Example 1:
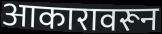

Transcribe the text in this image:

आकारावरून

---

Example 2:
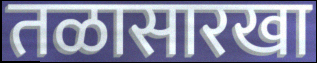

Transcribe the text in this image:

तळासारखा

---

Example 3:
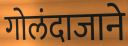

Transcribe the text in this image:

गोलंदाजाने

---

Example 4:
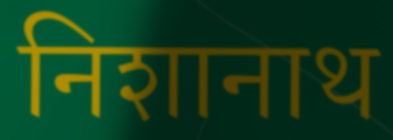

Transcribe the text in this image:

निशानाथ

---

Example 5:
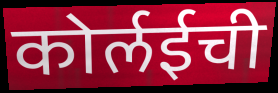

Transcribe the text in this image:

कोर्लईची